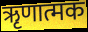
ऋृणात्मक